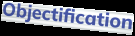
Objectification